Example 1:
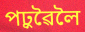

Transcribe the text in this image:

পঢ়ুৱৈলৈ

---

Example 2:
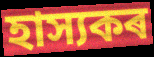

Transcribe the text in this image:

হাস্যকৰ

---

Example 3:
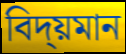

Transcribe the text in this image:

বিদ্য়মান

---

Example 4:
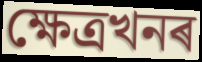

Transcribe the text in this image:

ক্ষেত্ৰখনৰ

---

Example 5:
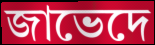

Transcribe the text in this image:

জাভেদে